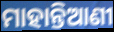
ମାହାନ୍ତିଆଣୀ